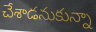
చేశాడనుకున్నా